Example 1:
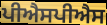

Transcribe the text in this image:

ਪੀਐਸਪੀਐਸ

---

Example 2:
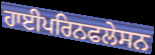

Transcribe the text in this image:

ਹਾਈਪਰਿਨਫਲੇਸਨ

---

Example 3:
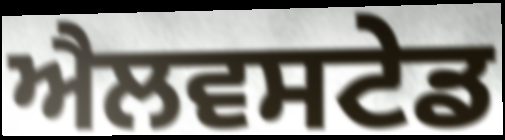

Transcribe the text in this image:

ਐਲਵਸਟੇਡ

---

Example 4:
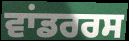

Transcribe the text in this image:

ਵਾਂਡਰਰਸ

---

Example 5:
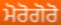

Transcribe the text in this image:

ਮੋਰੋਗੋਰੋ